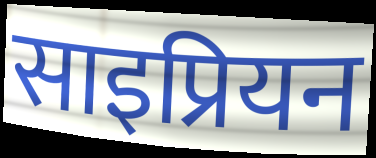
साइप्रियन